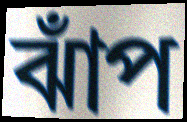
ঝাঁপ